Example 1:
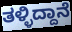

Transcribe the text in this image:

ತಳ್ಳಿದ್ದಾನೆ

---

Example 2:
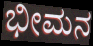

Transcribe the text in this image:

ಭೀಮನ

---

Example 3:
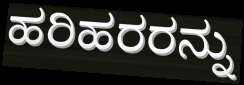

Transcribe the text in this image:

ಹರಿಹರರನ್ನು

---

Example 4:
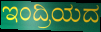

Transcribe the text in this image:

ಇಂದ್ರಿಯದ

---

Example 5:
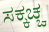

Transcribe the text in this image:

ಸಕ್ಕಚ್ಚ